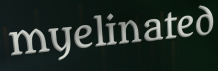
myelinated